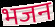
भजन